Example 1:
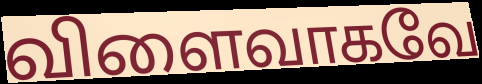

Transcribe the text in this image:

விளைவாகவே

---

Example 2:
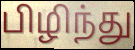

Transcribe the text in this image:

பிழிந்து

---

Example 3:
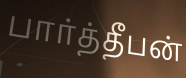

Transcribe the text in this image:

பார்த்தீபன்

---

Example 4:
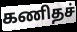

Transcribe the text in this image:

கணிதச்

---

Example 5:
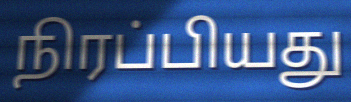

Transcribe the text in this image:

நிரப்பியது